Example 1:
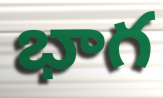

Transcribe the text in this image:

భాగ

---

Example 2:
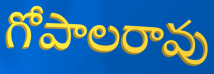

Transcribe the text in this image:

గోపాలరావు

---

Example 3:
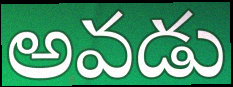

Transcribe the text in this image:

అవడు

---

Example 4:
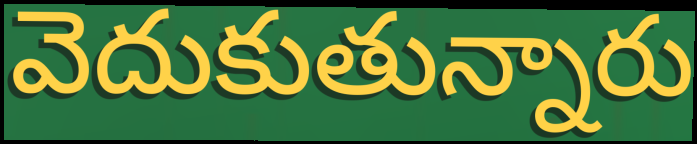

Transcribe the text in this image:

వెదుకుతున్నారు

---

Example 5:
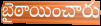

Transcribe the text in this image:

బైఠాయించారు